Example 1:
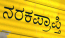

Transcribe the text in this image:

ನರಕಪ್ರಾಪ್ತಿ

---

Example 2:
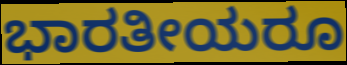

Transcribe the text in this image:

ಭಾರತೀಯರೂ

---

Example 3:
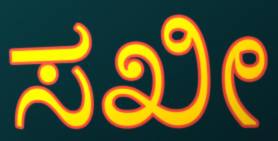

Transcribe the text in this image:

ಸಖೀ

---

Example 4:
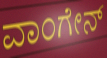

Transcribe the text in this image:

ವಾಂಗೇನ್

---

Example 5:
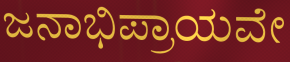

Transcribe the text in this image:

ಜನಾಭಿಪ್ರಾಯವೇ